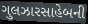
ગુલઝારસાહેબની